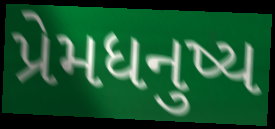
પ્રેમધનુષ્ય